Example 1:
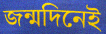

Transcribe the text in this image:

জন্মদিনেই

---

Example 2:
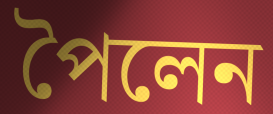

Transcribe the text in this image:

পৈলেন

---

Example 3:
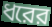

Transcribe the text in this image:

ধরের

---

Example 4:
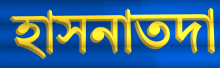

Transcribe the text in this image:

হাসনাতদা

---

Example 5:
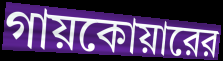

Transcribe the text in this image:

গায়কোয়ারের